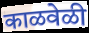
काळवेळी